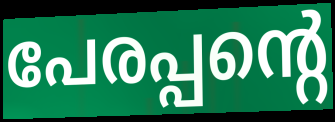
പേരപ്പന്റെ